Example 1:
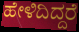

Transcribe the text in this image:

ಹೇಳಿದಿದ್ದರೆ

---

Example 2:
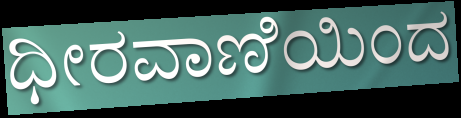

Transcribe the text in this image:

ಧೀರವಾಣಿಯಿಂದ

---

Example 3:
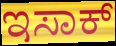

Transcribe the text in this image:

ಇಸಾಕ್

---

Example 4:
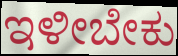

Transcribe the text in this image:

ಇಳೀಬೇಕು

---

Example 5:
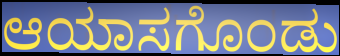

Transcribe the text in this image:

ಆಯಾಸಗೊಂಡು